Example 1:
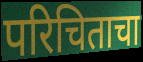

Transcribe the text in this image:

परिचिताचा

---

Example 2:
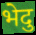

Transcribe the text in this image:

भेदु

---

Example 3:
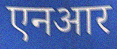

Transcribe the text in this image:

एनआर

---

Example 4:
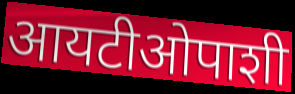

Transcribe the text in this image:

आयटीओपाशी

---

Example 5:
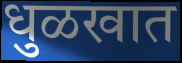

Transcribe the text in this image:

धुळखात